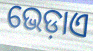
ଭେଡ଼ାଏ